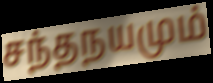
சந்தநயமும்